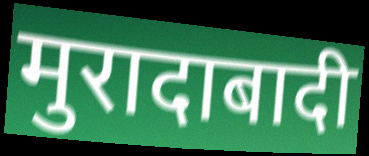
मुरादाबादी